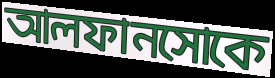
আলফানসোকে